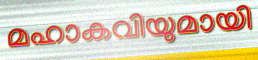
മഹാകവിയുമായി